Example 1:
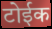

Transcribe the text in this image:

टोईक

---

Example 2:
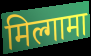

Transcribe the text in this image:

मिल्गामा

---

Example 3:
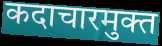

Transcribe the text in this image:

कदाचारमुक्त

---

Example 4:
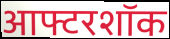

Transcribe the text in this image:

आफ्टरशॉक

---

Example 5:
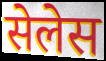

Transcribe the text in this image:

सेलेस